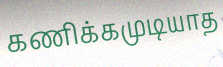
கணிக்கமுடியாத